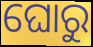
ଘୋରୁ